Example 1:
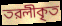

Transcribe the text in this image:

তরলীকৃত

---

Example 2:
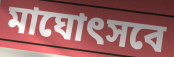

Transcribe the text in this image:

মাঘোৎসবে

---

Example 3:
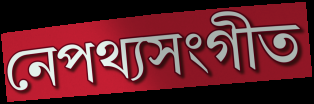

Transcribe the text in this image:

নেপথ্যসংগীত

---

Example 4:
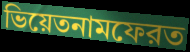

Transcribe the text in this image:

ভিয়েতনামফেরত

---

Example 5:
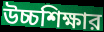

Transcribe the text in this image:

উচ্চশিক্ষার